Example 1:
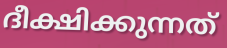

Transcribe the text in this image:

ദീക്ഷിക്കുന്നത്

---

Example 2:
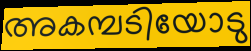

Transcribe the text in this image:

അകമ്പടിയോടു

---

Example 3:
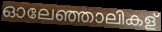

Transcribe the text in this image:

ഓലേഞ്ഞാലികള്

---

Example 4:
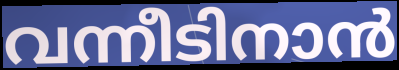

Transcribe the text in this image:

വന്നീടിനാൻ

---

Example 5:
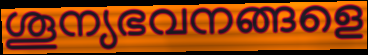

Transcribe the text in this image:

ശൂന്യഭവനങ്ങളെ